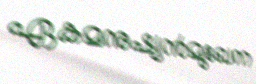
ഏകമനുഷ്യൻമുഖേന